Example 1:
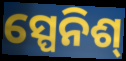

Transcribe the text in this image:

ସ୍ପେନିଶ୍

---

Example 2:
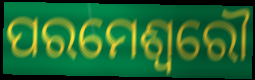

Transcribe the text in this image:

ପରମେଶ୍ଵରୌ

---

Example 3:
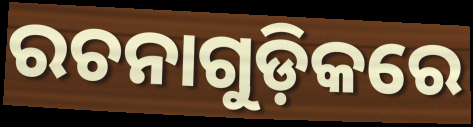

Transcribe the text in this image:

ରଚନାଗୁଡ଼ିକରେ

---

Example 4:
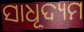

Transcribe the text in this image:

ସାଧୂଦ୍ୟମ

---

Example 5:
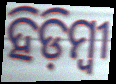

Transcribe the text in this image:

ହିଡ଼ିମ୍ବୀ